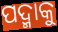
ପଦ୍ମାକୁ